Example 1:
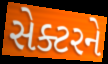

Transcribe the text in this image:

સેક્ટરને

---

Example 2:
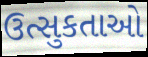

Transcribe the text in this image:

ઉત્સુકતાઓ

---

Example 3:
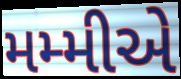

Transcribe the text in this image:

મમ્મીએ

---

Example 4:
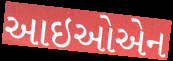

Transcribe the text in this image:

આઇઓએન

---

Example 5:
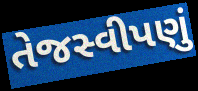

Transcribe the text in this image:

તેજસ્વીપણું